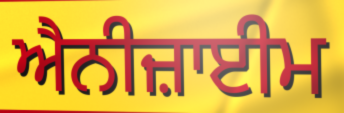
ਐਨੀਜ਼ਾਈਮ